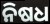
ନିଷଧ